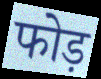
फोड़